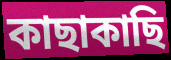
কাছাকাছি